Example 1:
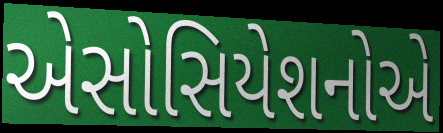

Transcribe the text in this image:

એસોસિયેશનોએ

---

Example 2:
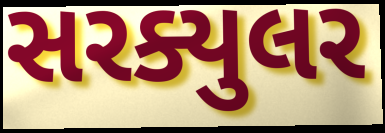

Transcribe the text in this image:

સરક્યુલર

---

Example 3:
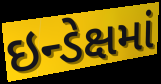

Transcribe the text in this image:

ઇન્ડેક્ષમાં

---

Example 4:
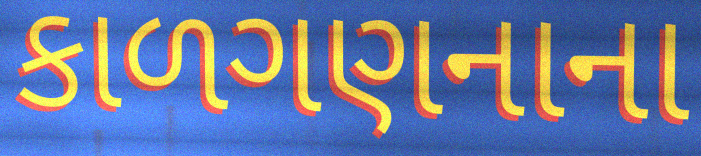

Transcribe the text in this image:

કાળગણનાના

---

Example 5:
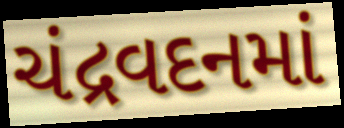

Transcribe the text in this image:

ચંદ્રવદનમાં